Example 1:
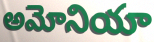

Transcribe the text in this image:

అమోనియా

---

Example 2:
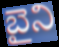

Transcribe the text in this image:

బైని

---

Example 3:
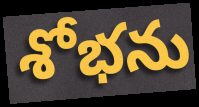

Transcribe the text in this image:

శోభను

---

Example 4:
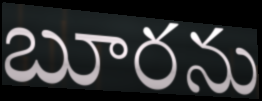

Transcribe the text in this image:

బూరను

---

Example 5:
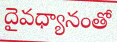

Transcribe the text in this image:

దైవధ్యానంతో